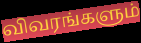
விவரங்களும்